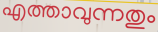
എത്താവുന്നതും